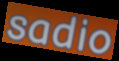
sadio